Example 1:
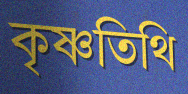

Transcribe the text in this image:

কৃষ্ণতিথি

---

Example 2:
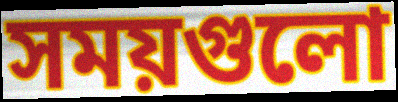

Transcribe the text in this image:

সময়গুলো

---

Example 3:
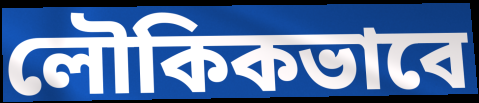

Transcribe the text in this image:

লৌকিকভাবে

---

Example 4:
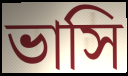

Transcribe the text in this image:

ভাসি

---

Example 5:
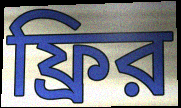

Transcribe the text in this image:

ফ্রির